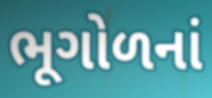
ભૂગોળનાં